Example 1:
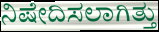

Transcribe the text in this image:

ನಿಷೇದಿಸಲಾಗಿತ್ತು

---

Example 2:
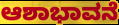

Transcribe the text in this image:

ಆಶಾಭಾವನೆ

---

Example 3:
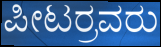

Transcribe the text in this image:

ಪೀಟರ್‍ರವರು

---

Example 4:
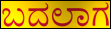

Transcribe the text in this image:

ಬದಲಾಗ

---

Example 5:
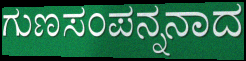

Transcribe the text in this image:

ಗುಣಸಂಪನ್ನನಾದ